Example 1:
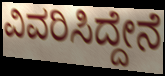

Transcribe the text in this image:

ವಿವರಿಸಿದ್ದೇನೆ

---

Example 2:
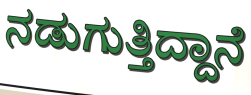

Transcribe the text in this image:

ನಡುಗುತ್ತಿದ್ದಾನೆ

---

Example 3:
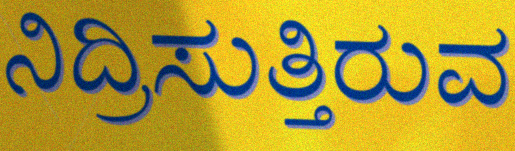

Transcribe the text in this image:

ನಿದ್ರಿಸುತ್ತಿರುವ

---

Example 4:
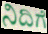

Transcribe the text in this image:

ನಿದಿಗೆ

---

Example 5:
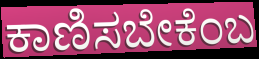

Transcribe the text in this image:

ಕಾಣಿಸಬೇಕೆಂಬ